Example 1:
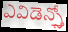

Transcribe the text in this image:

ఎవిడెన్స్తో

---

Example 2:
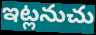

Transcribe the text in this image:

ఇట్లనుచు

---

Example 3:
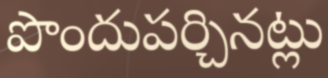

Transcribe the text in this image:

పొందుపర్చినట్లు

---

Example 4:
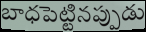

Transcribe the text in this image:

బాధపెట్టినప్పుడు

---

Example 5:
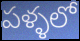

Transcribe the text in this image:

పళ్ళలో